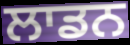
ਲਾਡਨ